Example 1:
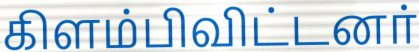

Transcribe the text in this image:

கிளம்பிவிட்டனர்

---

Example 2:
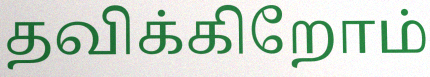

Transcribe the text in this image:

தவிக்கிறோம்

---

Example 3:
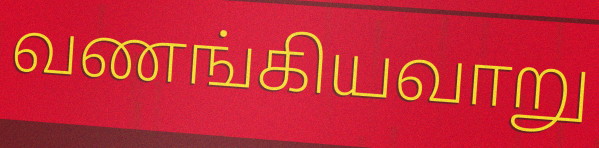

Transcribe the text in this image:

வணங்கியவாறு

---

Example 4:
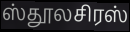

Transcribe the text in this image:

ஸ்தூலசிரஸ்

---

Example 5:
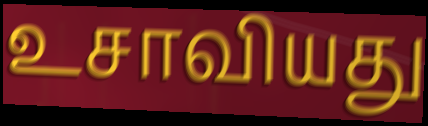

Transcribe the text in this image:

உசாவியது